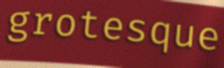
grotesque